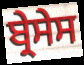
ਬ੍ਰੇਸੇਸ